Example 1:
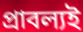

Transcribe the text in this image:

প্রাবল্যই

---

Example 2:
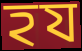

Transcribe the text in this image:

হয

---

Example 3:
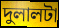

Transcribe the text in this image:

দুলালটা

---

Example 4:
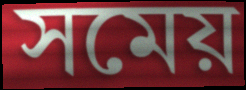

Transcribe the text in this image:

সমেয়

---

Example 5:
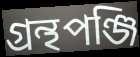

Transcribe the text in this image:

গ্রন্থপঞ্জি